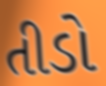
તીડો